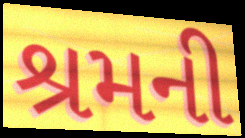
શ્રમની